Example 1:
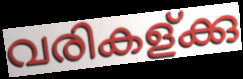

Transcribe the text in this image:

വരികള്ക്കു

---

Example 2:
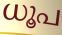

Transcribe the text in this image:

ധൂപ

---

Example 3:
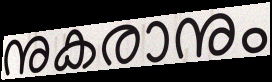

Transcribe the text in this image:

നുകരാനും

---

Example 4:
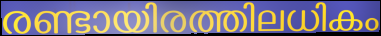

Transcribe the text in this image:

രണ്ടായിരത്തിലധികം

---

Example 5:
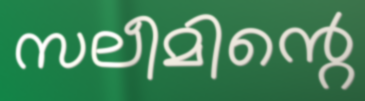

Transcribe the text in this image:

സലീമിന്റെ